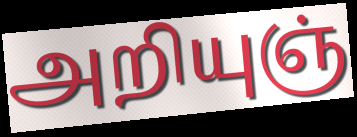
அறியுஞ்